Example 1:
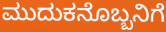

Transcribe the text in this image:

ಮುದುಕನೊಬ್ಬನಿಗೆ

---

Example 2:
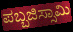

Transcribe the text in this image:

ಪಬ್ಬಜಿಸ್ಸಾಮಿ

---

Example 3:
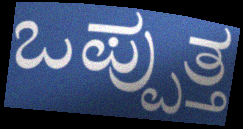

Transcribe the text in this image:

ಒಪ್ಪುತ್ತ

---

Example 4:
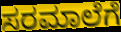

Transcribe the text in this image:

ಸರಮಾಲೆಗೆ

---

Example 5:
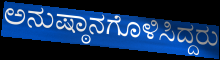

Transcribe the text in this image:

ಅನುಷ್ಠಾನಗೊಳಿಸಿದ್ದರು